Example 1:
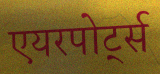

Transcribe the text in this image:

एयरपोर्ट्स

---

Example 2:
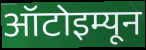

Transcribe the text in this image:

ऑटोइम्‍यून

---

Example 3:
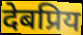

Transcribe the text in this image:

देबप्रिय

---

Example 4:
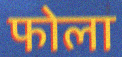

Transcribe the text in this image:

फोला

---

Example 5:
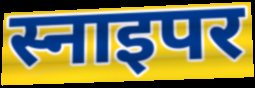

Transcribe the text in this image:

स्नाइपर